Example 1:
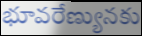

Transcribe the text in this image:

భూవరేణ్యునకు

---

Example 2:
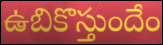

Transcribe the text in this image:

ఉబికొస్తుందేం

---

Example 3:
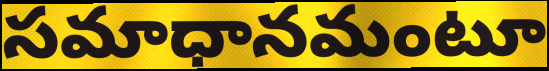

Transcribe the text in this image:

సమాధానమంటూ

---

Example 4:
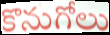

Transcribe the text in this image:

కొనుగోలు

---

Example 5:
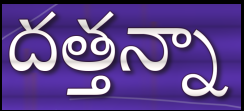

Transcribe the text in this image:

దత్తన్నా